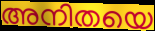
അനിതയെ